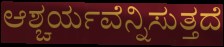
ಆಶ್ಚರ್ಯವೆನ್ನಿಸುತ್ತದೆ